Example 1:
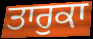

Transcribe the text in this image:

ਤਾਰੁਕਾ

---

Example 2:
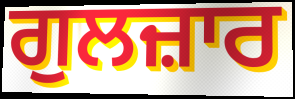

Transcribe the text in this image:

ਗੁਲਜ਼ਾਰ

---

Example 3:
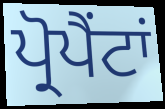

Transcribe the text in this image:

ਪ੍ਰੋਪੈਂਟਾਂ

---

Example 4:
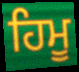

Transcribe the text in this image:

ਹਿਮੂ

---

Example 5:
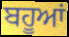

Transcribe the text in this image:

ਬਹੂਆਂ